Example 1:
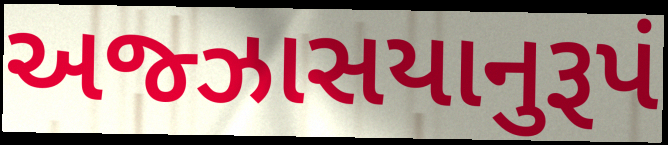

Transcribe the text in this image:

અજ્ઝાસયાનુરૂપં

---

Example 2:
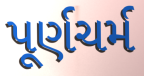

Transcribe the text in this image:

પૂર્ણચર્મ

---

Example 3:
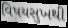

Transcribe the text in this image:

વિષયસુખથી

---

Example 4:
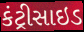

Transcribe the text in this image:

કંટ્રીસાઇડ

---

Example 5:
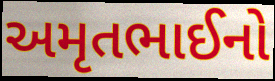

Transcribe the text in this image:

અમૃતભાઈનો